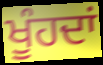
ਖੂੰਹਦਾਂ